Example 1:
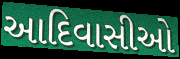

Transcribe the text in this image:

આદિવાસીઓ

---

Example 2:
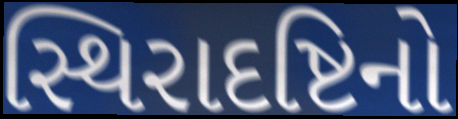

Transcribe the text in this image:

સ્થિરાદષ્ટિનો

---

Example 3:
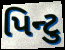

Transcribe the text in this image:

પિન્ટુ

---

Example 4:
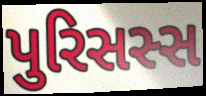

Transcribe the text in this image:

પુરિસસ્સ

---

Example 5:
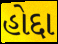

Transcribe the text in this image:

હોદ્દા